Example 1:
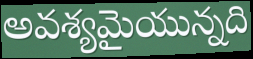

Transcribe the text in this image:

అవశ్యమైయున్నది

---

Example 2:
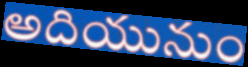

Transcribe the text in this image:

అదియునుం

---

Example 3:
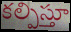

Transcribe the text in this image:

కల్పిస్తూ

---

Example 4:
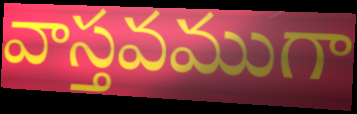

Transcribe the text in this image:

వాస్తవముగా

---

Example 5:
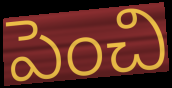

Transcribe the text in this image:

పెంచి